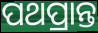
ପଥପ୍ରାନ୍ତ